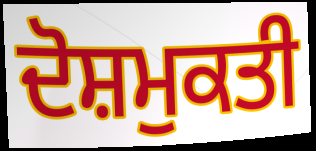
ਦੋਸ਼ਮੁਕਤੀ